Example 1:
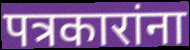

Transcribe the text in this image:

पत्रकारांना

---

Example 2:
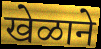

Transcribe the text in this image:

खेळाने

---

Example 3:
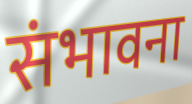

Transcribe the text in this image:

संभावना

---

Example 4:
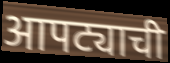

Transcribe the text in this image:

आपट्याची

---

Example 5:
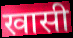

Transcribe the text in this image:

खासी